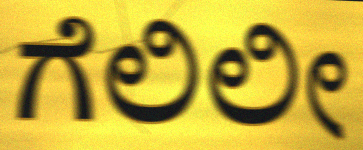
ಗೆಲಿಲೀ